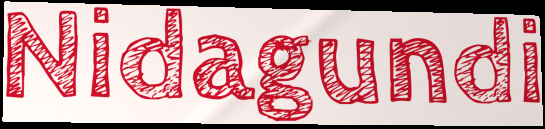
Nidagundi